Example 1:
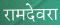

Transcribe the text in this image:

रामदेवरा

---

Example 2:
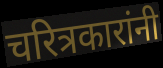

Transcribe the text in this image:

चरित्रकारांनी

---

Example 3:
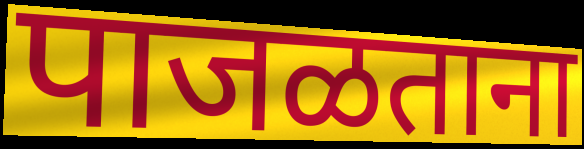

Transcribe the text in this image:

पाजळताना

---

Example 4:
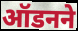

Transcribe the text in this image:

ऑडनने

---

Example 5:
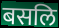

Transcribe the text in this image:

बसलि